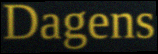
Dagens